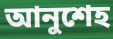
আনুশেহ